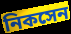
নিকসেন